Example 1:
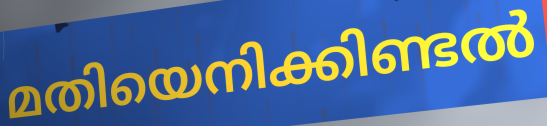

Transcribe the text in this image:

മതിയെനിക്കിണ്ടൽ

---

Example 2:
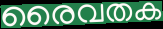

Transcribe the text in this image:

രൈവതക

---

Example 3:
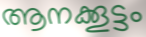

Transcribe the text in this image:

ആനക്കൂട്ടം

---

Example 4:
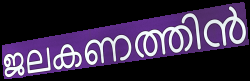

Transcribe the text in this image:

ജലകണത്തിൻ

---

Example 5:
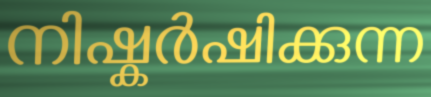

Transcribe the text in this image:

നിഷ്കർഷിക്കുന്ന